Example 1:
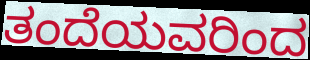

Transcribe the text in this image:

ತಂದೆಯವರಿಂದ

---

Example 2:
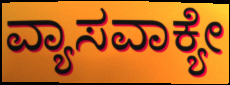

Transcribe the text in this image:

ವ್ಯಾಸವಾಕ್ಯೇ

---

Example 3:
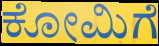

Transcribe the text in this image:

ಕೋಮಿಗೆ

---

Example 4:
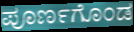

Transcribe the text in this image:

ಪೂರ್ಣಗೊಂಡ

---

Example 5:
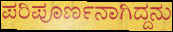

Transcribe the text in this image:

ಪರಿಪೂರ್ಣನಾಗಿದ್ದನು